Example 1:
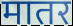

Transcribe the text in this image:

मातर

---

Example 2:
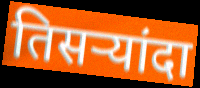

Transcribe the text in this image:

तिसऱ्यांदा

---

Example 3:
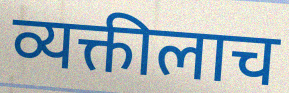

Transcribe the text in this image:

व्यक्तीलाच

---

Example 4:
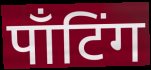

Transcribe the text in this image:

पाँटिंग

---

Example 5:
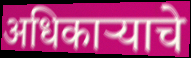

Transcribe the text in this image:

अधिकाऱ्याचे